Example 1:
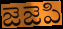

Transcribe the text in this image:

జెజెపి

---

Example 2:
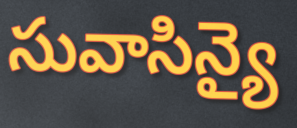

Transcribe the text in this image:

సువాసిన్యై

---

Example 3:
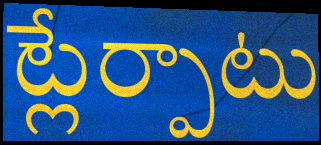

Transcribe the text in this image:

ట్లేర్పాటు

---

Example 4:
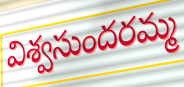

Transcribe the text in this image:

విశ్వసుందరమ్మ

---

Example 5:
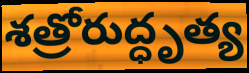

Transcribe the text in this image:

శత్రోరుద్ధృత్య